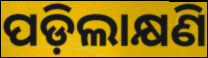
ପଡ଼ିଲାକ୍ଷଣି